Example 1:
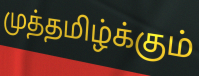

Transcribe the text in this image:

முத்தமிழ்க்கும்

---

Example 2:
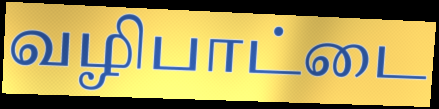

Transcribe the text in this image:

வழிபாட்டை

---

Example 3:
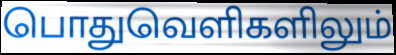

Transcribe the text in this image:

பொதுவெளிகளிலும்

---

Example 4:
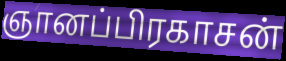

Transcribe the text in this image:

ஞானப்பிரகாசன்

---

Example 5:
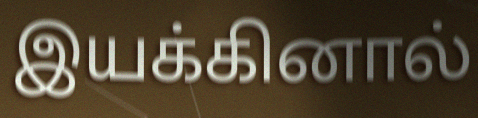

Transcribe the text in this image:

இயக்கினால்